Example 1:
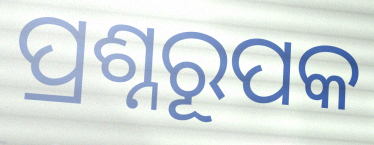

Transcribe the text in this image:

ପ୍ରଶ୍ନରୂପକ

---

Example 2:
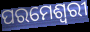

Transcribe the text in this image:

ପରମେଶ୍ୱରୀ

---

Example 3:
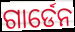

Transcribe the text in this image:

ଗାର୍ଡେନ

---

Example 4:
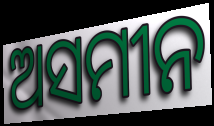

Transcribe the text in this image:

ଅସମୀନ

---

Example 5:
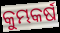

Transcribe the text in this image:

କୁମ୍ଭକର୍ଷ